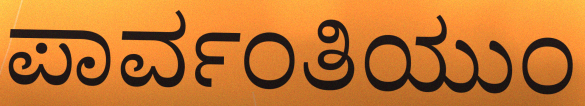
ಪಾರ್ವಂತಿಯುಂ